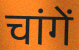
चांगें